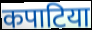
कपाटिया